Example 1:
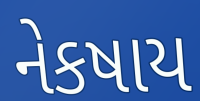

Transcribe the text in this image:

નેકષાય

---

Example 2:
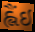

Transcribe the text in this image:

હ્લૈંઇ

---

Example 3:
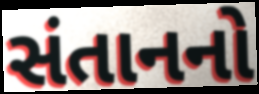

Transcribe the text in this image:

સંતાનનો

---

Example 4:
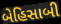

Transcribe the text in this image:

બેહિસાબી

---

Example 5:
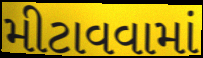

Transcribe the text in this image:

મીટાવવામાં